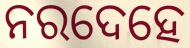
ନରଦେହେ